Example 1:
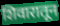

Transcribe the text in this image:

शिवारातून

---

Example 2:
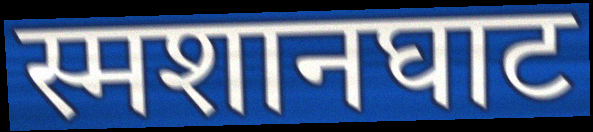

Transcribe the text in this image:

स्मशानघाट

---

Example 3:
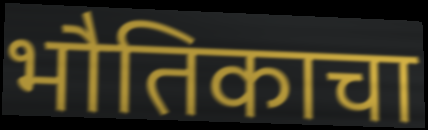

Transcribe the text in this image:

भौतिकाचा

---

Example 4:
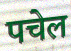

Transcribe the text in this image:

पचेल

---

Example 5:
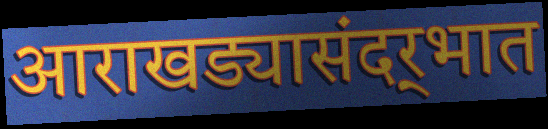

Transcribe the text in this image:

आराखड्यासंदर्भात